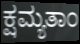
ಕ್ಷಮ್ಯತಾಂ